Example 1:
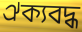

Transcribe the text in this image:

ঐক্যবদ্ধ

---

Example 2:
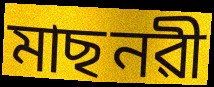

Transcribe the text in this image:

মাছনৱী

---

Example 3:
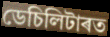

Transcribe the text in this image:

ডেচিলিটাৰত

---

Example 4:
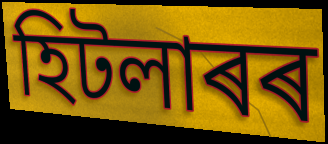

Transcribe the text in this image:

হিটলাৰৰ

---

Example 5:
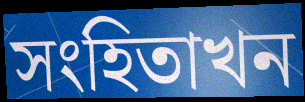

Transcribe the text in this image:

সংহিতাখন